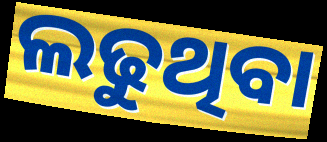
ଲଢୁଥିବା